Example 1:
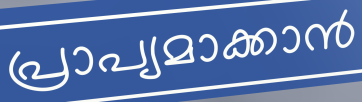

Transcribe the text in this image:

പ്രാപ്യമാക്കാൻ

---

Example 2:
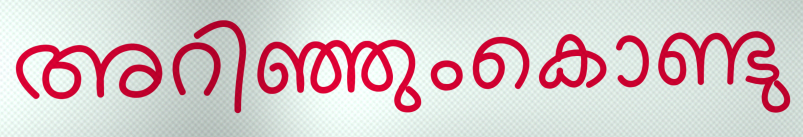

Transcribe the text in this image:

അറിഞ്ഞുംകൊണ്ടു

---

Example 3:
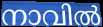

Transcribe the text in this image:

നാവിൽ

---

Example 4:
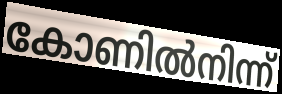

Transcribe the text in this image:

കോണിൽനിന്ന്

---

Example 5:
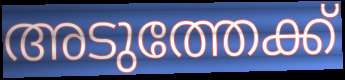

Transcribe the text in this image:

അടുത്തേക്ക്